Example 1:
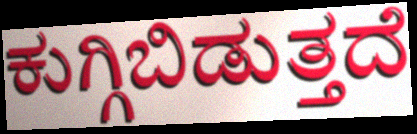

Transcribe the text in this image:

ಕುಗ್ಗಿಬಿಡುತ್ತದೆ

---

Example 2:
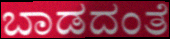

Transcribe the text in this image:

ಬಾಡದಂತೆ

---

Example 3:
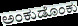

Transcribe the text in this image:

ಅಂಕುಡೊಂಕು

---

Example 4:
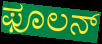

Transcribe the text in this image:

ಫೂಲನ್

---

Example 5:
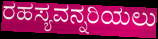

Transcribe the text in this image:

ರಹಸ್ಯವನ್ನರಿಯಲು